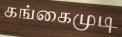
கங்கைமுடி